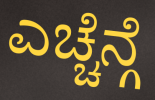
ಎಚ್ಚೆನ್ಗೆ